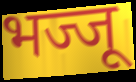
भज्जू